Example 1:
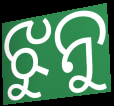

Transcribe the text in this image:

ଝୁନୁ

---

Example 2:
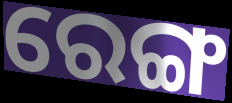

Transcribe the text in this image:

ରେଙ୍ଗ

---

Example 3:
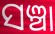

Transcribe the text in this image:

ସଞ୍ଚା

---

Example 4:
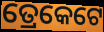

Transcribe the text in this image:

ତ୍ରେକେଟେ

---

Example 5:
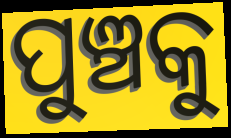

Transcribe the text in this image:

ପୁଞ୍ଚକୁ